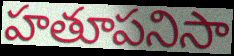
హతూపనిసా